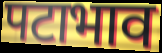
पटाभाव